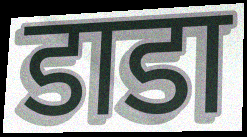
डाडा